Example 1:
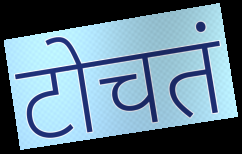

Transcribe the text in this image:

टोचतं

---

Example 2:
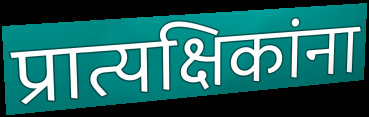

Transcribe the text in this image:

प्रात्यक्षिकांना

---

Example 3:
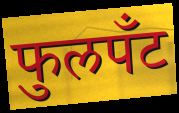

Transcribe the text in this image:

फुलपँट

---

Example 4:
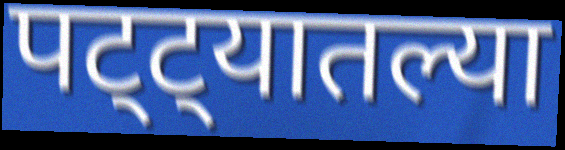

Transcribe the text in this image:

पट्ट्यातल्या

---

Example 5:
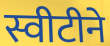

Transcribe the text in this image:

स्वीटीने